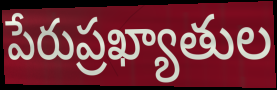
పేరుప్రఖ్యాతుల